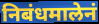
निबंधमालेनं